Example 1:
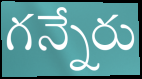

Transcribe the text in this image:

గన్నేరు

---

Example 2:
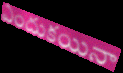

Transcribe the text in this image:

ఎందుకయినా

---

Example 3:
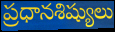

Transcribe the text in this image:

ప్రధానశిష్యులు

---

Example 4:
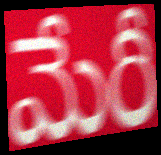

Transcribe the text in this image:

మేరీ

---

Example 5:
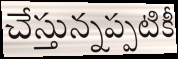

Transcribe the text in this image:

చేస్తున్నప్పటికీ